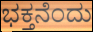
ಭಕ್ತನೆಂದು